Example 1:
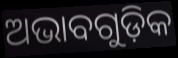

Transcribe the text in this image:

ଅଭାବଗୁଡ଼ିକ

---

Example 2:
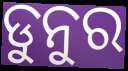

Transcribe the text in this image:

ଡୁନୁର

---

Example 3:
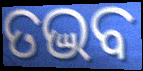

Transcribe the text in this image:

ତଦ୍ଭବ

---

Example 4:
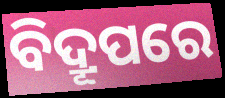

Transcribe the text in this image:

ବିଦ୍ରୂପରେ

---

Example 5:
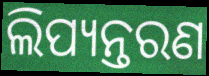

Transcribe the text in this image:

ଲିପ୍ୟନ୍ତରଣ